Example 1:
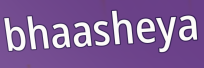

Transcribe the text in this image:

bhaasheya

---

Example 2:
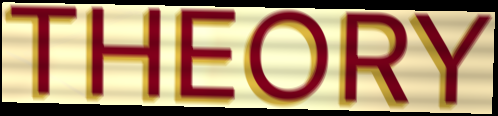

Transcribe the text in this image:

THEORY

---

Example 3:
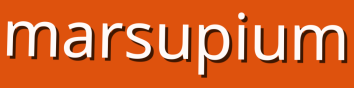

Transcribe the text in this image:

marsupium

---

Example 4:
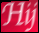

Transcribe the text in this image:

Hij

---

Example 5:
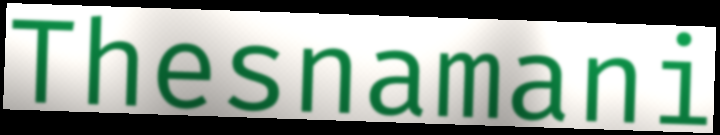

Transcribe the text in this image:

Thesnamani